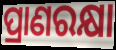
ପ୍ରାଣରକ୍ଷା